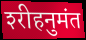
श्रीहनुमंत